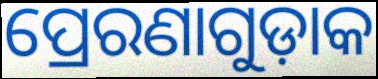
ପ୍ରେରଣାଗୁଡ଼ାକ